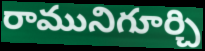
రామునిగూర్చి